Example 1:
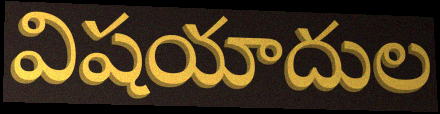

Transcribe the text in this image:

విషయాదుల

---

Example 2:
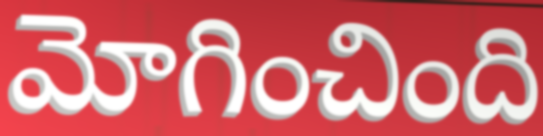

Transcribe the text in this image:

మోగించింది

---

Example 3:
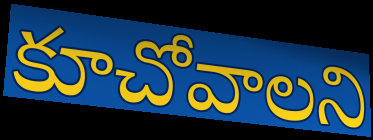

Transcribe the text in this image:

కూచోవాలని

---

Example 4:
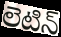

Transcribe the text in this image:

లెటిన్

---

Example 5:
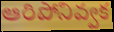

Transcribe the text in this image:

ఆరిపోనివ్వక